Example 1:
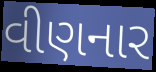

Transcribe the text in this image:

વીણનાર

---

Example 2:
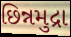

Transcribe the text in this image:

છિન્નમુદ્રા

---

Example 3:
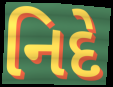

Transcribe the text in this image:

નિદે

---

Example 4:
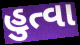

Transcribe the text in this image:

હુત્વા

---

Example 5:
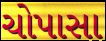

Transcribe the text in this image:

ચોપાસા